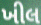
ખીલ